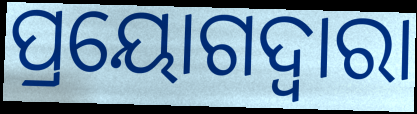
ପ୍ରୟୋଗଦ୍ୱାରା